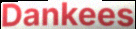
Dankees